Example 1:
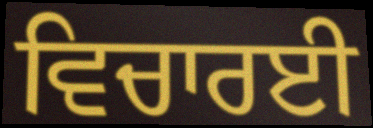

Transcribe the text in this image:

ਵਿਚਾਰਈ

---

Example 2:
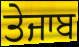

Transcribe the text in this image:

ਤੇਜਾਬ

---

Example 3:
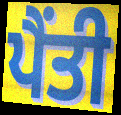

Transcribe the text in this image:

ਪੈਂਤੀ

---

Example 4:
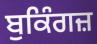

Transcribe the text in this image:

ਬੁਕਿੰਗਜ਼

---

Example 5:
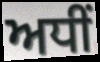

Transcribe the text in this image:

ਅਧੀਂ